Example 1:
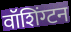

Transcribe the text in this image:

वॉशिंग्टन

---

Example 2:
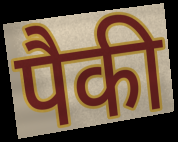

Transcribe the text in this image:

पैकी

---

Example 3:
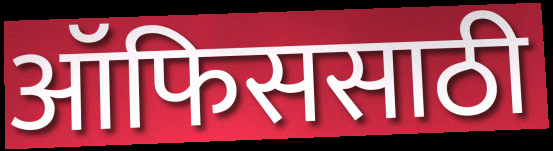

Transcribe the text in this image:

ऑफिससाठी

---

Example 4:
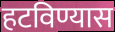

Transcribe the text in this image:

हटविण्यास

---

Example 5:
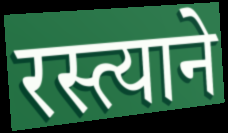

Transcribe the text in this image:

रस्त्याने